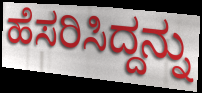
ಹೆಸರಿಸಿದ್ದನ್ನು